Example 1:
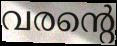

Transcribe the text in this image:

വരന്റെ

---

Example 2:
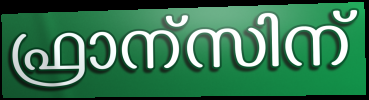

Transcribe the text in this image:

ഫ്രാന്സിന്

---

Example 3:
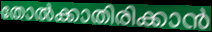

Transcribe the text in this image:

തോൽക്കാതിരിക്കാൻ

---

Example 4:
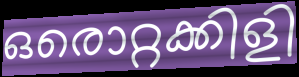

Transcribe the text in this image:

ഒരൊറ്റക്കിളി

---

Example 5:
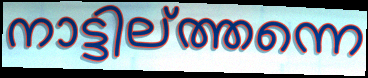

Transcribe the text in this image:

നാട്ടില്ത്തന്നെ